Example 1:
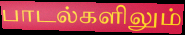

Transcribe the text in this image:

பாடல்களிலும்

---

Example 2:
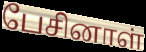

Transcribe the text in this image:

பேசினாள்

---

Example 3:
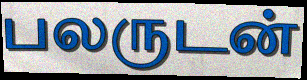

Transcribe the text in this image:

பலருடன்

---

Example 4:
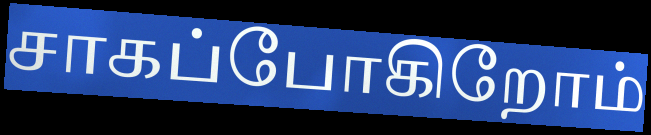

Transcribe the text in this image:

சாகப்போகிறோம்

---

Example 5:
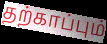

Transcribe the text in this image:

தற்காப்பும்